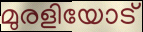
മുരളിയോട്